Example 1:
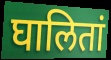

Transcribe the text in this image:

घालितां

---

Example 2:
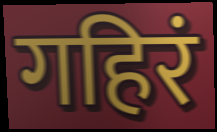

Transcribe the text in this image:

गहिरं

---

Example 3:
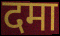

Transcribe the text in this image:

दमा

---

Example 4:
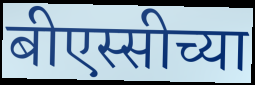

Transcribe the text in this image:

बीएस्सीच्या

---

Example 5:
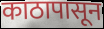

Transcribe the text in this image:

काठापासून